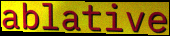
ablative